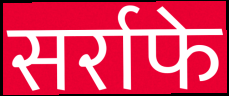
सर्राफे